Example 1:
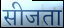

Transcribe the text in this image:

सीजता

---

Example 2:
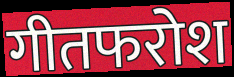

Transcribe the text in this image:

गीतफरोश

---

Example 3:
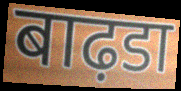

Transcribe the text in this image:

बाढ़डा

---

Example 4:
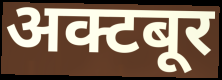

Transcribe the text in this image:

अक्टबूर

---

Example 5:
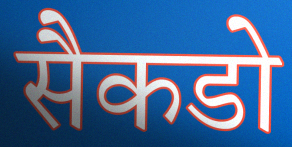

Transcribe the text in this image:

सैकडो